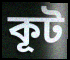
কূট